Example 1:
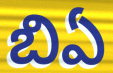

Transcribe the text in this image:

బిఏ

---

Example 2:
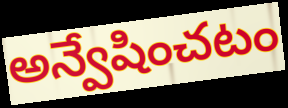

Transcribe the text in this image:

అన్వేషించటం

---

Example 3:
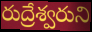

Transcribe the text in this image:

రుద్రేశ్వరుని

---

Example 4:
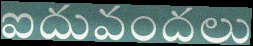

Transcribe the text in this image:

ఐదువందలు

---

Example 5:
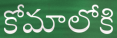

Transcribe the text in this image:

కోమాలోకి